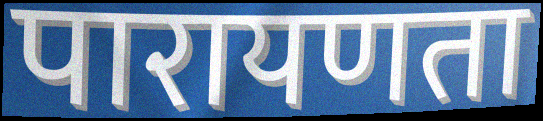
पारायणता